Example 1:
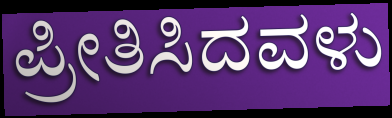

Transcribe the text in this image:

ಪ್ರೀತಿಸಿದವಳು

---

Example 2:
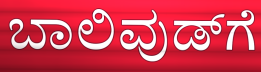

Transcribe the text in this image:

ಬಾಲಿವುಡ್‌ಗೆ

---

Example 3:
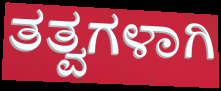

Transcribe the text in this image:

ತತ್ವಗಳಾಗಿ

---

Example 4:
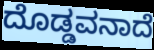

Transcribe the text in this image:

ದೊಡ್ಡವನಾದೆ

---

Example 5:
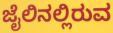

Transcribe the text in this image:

ಜೈಲಿನಲ್ಲಿರುವ